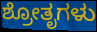
ಶ್ರೋತೃಗಳು